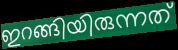
ഇറങ്ങിയിരുന്നത്